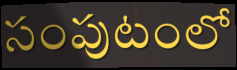
సంపుటంలో